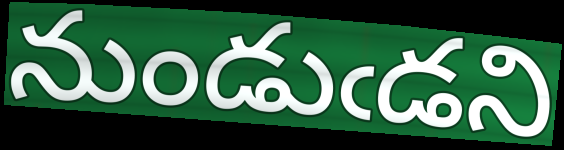
నుండుఁడని